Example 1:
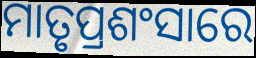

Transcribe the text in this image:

ମାତୃପ୍ରଶଂସାରେ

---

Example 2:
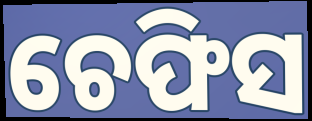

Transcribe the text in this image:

ଚେଫିସ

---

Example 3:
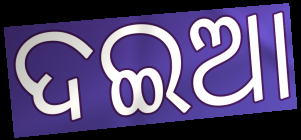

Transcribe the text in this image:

ଦଇଆ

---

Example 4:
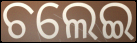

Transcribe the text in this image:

ଚଲେଇ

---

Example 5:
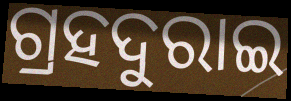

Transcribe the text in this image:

ଗ୍ରହଦୁରାଇ